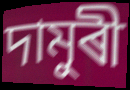
দামুৰী